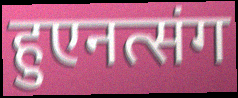
हुएनत्संग